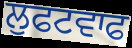
ਲੁਫਟਵਾਫ